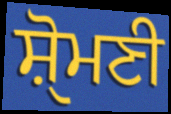
ਸ਼ੑੋਮਣੀ